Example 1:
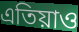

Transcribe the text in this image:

এতিয়াও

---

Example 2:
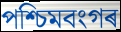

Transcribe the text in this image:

পশ্চিমবংগৰ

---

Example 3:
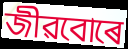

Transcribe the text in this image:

জীৱবোৰে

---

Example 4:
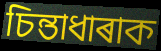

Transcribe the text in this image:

চিন্তাধাৰাক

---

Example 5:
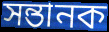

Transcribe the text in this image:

সন্তানক